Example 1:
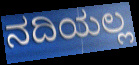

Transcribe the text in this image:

ನದಿಯಲ್ಲ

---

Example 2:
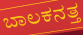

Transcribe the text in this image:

ಬಾಲಕನತ್ತ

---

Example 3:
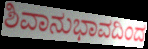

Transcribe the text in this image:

ಶಿವಾನುಭಾವದಿಂದ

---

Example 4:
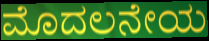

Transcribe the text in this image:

ಮೊದಲನೇಯ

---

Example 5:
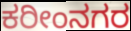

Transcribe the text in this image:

ಕರೀಂನಗರ